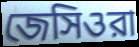
জেসিওরা